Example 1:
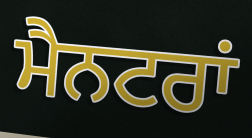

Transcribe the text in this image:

ਮੈਨਟਰਾਂ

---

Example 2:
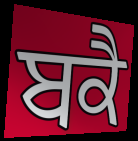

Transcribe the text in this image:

ਬਕੈ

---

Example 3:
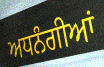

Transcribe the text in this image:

ਅਧਨੰਗੀਆਂ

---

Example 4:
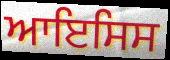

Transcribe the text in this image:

ਆਇਸਿਸ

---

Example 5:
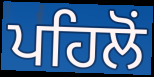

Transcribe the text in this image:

ਪਹਿਲੋਂ